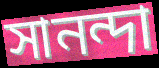
সানন্দা